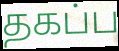
தகப்ப